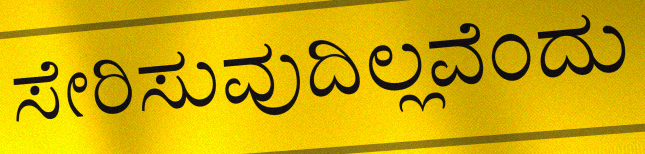
ಸೇರಿಸುವುದಿಲ್ಲವೆಂದು